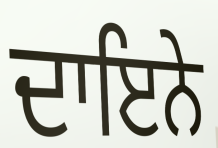
ਦਾਇਨੇ